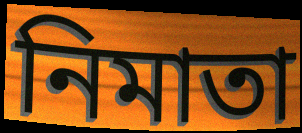
নিমাতা